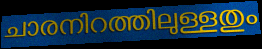
ചാരനിറത്തിലുള്ളതും